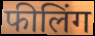
फीलिंग